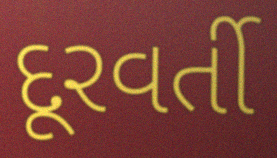
દૂરવર્તી